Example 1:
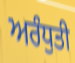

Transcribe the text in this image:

ਅਰੰਧੁਤੀ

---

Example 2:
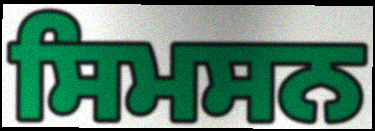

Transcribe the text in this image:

ਸਿਮਸਨ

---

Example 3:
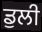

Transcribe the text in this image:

ਡੁਲੀ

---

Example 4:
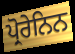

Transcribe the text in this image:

ਪ੍ਰੋਰੇਨਿਨ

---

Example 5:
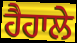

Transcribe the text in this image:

ਹੈਹਾਲੇ